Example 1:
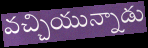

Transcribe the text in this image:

వచ్చియున్నాడు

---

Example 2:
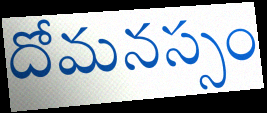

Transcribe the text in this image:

దోమనస్సం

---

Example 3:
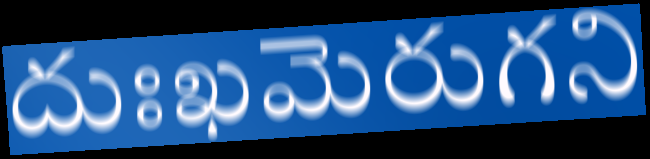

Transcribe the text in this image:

దుఃఖమెరుగని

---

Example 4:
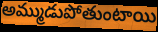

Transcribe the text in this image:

అమ్ముడుపోతుంటాయి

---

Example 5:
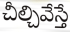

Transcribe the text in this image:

చీల్చివేస్తే